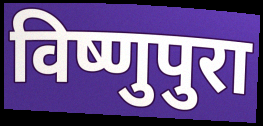
विष्णुपुरा